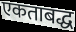
एकताबद्ध